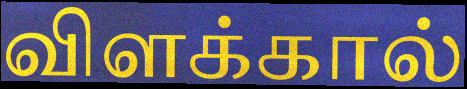
விளக்கால்